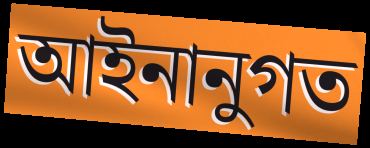
আইনানুগত